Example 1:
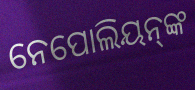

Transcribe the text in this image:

ନେପୋଲିୟନ୍‍ଙ୍କ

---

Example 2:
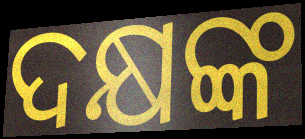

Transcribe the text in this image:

ଦକ୍ଷଙ୍କ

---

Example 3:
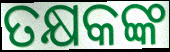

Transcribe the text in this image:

ତକ୍ଷକଙ୍କ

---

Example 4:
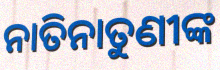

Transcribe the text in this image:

ନାତିନାତୁଣୀଙ୍କ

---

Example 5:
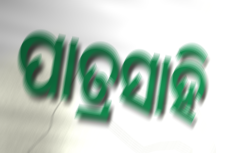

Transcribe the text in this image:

ପାତ୍ରସାହି